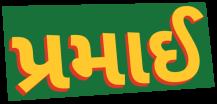
પ્રમાઈ